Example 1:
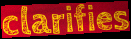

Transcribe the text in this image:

clarifies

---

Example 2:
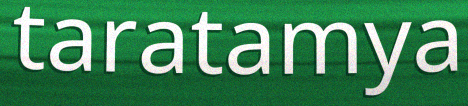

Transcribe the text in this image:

taratamya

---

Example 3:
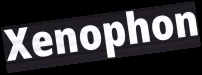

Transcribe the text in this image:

Xenophon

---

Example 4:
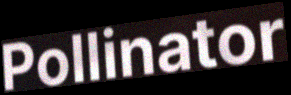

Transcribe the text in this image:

Pollinator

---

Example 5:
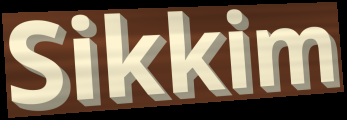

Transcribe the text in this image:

Sikkim